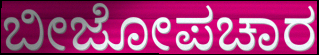
ಬೀಜೋಪಚಾರ